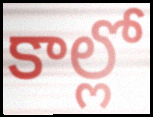
కాల్లో